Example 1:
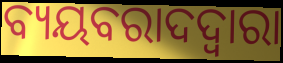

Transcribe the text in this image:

ବ୍ୟୟବରାଦଦ୍ଵାରା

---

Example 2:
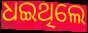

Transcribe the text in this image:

ଧଇଥିଲେ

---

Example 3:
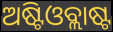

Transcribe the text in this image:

ଅଷ୍ଟିଓବ୍ଲାଷ୍ଟ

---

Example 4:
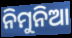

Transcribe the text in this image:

ନିମୁନିଆ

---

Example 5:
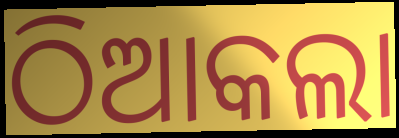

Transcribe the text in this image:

ଠିଆକଲା